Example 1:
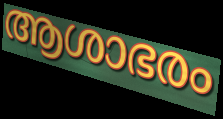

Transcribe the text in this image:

ആശാഭരം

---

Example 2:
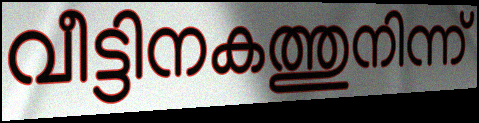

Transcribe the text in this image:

വീട്ടിനകത്തുനിന്ന്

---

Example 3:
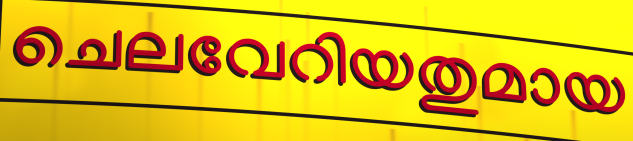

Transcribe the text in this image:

ചെലവേറിയതുമായ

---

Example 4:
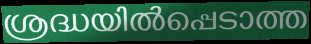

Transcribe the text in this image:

ശ്രദ്ധയിൽപ്പെടാത്ത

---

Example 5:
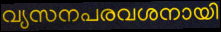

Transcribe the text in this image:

വ്യസനപരവശനായി